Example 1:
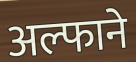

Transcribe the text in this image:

अल्फाने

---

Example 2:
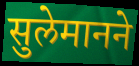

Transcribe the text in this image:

सुलेमानने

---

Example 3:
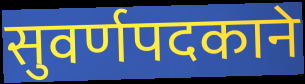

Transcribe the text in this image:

सुवर्णपदकाने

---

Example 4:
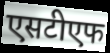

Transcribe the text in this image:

एसटीएफ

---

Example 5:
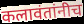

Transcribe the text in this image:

कलावंतांनीच